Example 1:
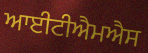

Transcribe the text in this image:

ਆਈਟੀਐਮਐਸ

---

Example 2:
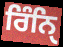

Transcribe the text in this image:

ਰਿੰਨਿੑ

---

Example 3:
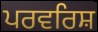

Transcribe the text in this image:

ਪਰਵਰਿਸ਼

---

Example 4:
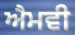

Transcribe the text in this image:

ਐਮਵੀ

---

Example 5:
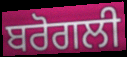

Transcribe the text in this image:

ਬਰੋਗਲੀ